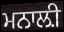
ਮਨਾਲ਼ੀ